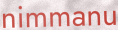
nimmanu